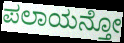
ಪಲಾಯನ್ತೋ